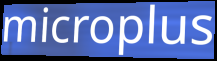
microplus